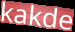
kakde